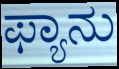
ಫ್ಯಾನು